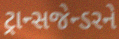
ટ્રાન્સજેન્ડરને